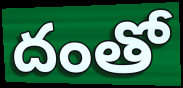
దంతో